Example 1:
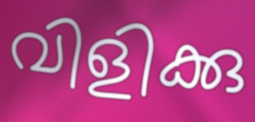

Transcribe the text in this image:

വിളിക്കു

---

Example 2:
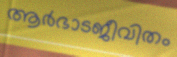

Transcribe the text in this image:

ആർഭാടജീവിതം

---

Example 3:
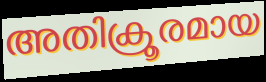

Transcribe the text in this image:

അതിക്രൂരമായ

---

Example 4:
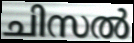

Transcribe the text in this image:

ചിസൽ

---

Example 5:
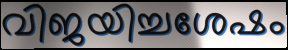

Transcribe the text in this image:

വിജയിച്ചശേഷം